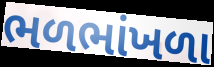
ભળભાંખળા